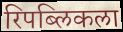
रिपब्लिकला